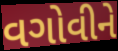
વગોવીને